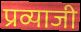
प्रव्याजी